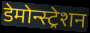
डेमोन्स्ट्रेशन